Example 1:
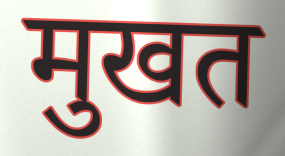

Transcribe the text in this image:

मुखत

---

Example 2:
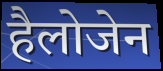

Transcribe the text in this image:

हैलोजेन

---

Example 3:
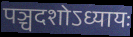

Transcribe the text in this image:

पञ्चदशोऽध्यायः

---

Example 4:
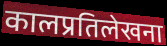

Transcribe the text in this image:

कालप्रतिलेखना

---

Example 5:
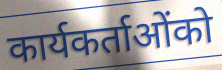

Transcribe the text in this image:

कार्यकर्ताओंको